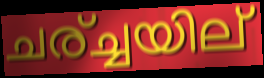
ചര്ച്ചയില്